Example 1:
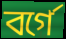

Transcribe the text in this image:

বর্গে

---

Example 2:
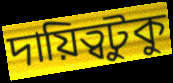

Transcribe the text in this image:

দায়িত্বটুকু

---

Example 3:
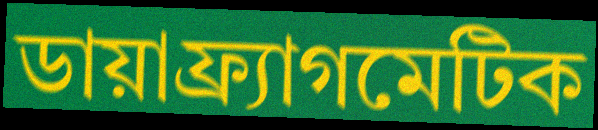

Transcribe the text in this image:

ডায়াফ্র্যাগমেটিক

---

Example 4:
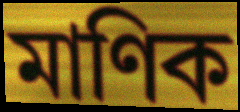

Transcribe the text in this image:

মাণিক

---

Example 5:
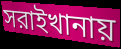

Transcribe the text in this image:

সরাইখানায়